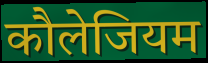
कौलेजियम